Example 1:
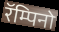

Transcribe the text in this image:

रॅम्पिनो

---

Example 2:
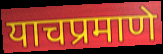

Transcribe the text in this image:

याचप्रमाणे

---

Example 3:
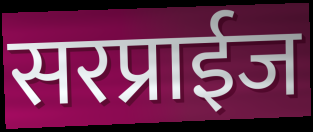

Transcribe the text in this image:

सरप्राईज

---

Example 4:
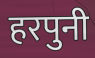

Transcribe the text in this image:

हरपुनी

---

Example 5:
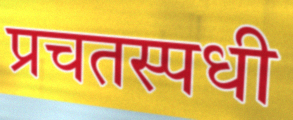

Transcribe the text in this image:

प्रचतस्पधी